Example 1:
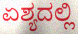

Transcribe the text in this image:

ಏಶ್ಯದಲ್ಲಿ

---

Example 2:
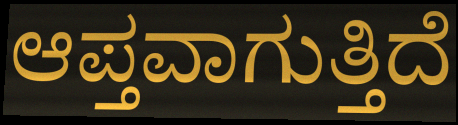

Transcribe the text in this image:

ಆಪ್ತವಾಗುತ್ತಿದೆ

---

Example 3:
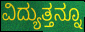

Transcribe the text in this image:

ವಿದ್ಯುತ್ತನ್ನೂ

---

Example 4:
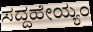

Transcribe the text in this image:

ಸದ್ದಹೇಯ್ಯಂ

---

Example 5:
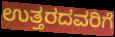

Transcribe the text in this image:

ಉತ್ತರದವರಿಗೆ